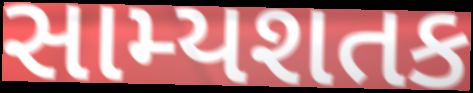
સામ્યશતક